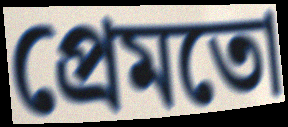
প্ৰেমতো